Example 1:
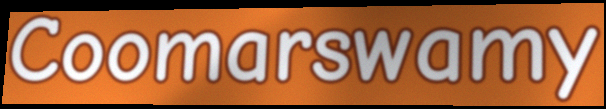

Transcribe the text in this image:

Coomarswamy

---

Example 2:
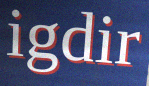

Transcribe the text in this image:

igdir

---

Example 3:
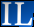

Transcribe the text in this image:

IL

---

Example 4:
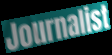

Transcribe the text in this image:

Journalist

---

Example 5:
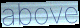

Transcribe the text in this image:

above